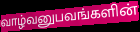
வாழ்வனுபவங்களின்